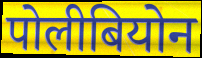
पोलीबियोन